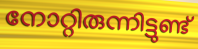
നോറ്റിരുന്നിട്ടുണ്ട്